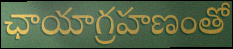
ఛాయాగ్రహణంతో